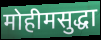
मोहीमसुद्धा